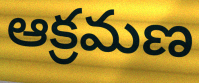
ఆక్రమణ